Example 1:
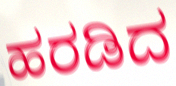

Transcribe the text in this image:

ಹರಡಿದ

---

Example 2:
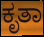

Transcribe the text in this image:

ಕೃತಾ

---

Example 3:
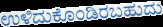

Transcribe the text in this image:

ಉಳಿದುಕೊಂಡಿರಬಹುದು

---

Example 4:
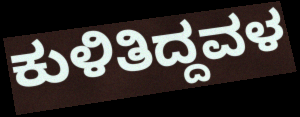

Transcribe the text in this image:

ಕುಳಿತಿದ್ದವಳ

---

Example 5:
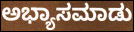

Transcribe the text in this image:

ಅಭ್ಯಾಸಮಾಡು